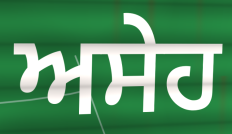
ਅਸੇਹ